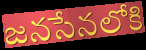
జనసేనలోకి